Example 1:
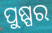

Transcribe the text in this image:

ପୁଷ୍ପର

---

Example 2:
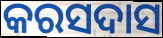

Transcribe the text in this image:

କରସଦାସ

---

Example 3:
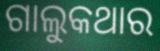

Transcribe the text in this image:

ଗାଲୁକଥାର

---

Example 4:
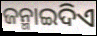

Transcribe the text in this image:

ଜନ୍ମାଇଦିଏ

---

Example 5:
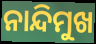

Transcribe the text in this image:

ନାନ୍ଦିମୁଖ